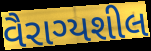
વૈરાગ્યશીલ